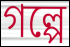
গল্পে